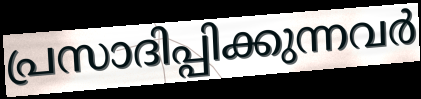
പ്രസാദിപ്പിക്കുന്നവർ